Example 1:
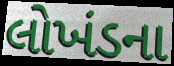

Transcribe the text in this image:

લોખંડના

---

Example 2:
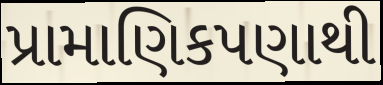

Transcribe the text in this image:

પ્રામાણિકપણાથી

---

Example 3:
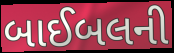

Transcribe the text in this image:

બાઈબલની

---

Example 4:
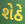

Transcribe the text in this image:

શેઠે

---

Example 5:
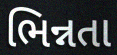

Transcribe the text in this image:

ભિન્નતા